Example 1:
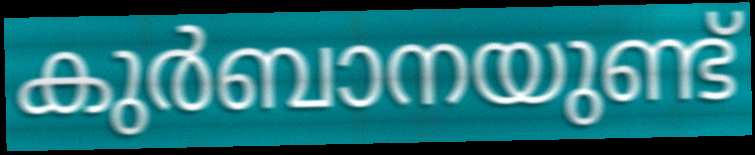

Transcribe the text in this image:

കുർബാനയുണ്ട്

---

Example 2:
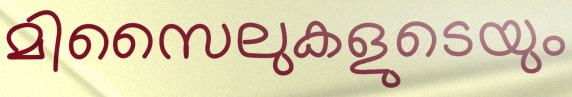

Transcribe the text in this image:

മിസൈലുകളുടെയും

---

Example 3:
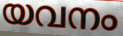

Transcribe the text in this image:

യവനം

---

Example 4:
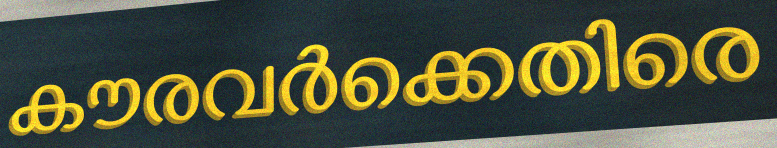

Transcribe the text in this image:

കൗരവർക്കെതിരെ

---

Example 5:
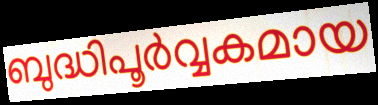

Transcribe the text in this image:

ബുദ്ധിപൂർവ്വകമായ